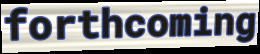
forthcoming